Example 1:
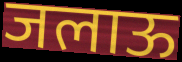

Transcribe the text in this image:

जलाऊ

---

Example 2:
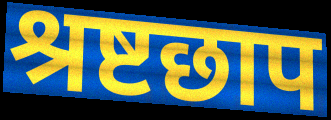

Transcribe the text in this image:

श्रष्टछाप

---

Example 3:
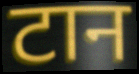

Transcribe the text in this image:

टान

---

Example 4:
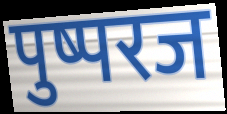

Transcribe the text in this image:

पुष्परज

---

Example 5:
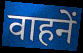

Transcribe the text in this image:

वाहनें